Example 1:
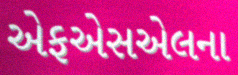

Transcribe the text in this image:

એફએસએલના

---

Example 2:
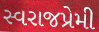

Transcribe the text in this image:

સ્વરાજપ્રેમી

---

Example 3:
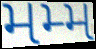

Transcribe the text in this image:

મમ્મ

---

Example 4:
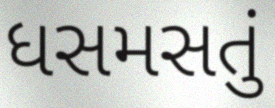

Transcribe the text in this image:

ધસમસતું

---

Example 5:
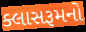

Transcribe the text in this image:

ક્લાસરૂમનો